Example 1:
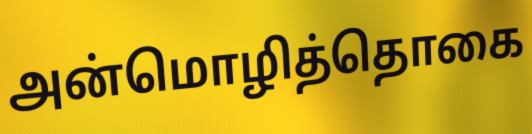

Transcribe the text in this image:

அன்மொழித்தொகை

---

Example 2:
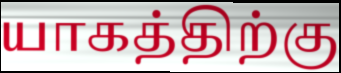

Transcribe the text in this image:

யாகத்திற்கு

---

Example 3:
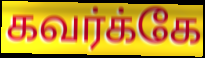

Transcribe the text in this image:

கவர்க்கே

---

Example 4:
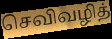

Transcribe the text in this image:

செவிவழித்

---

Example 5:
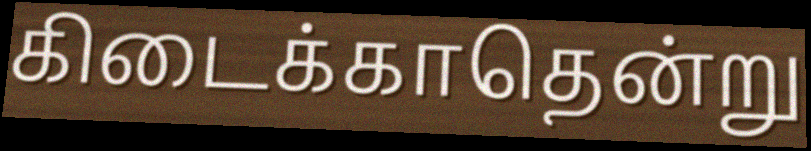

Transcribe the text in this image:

கிடைக்காதென்று